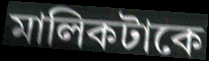
মালিকটাকে